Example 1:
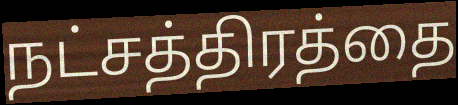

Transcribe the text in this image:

நட்சத்திரத்தை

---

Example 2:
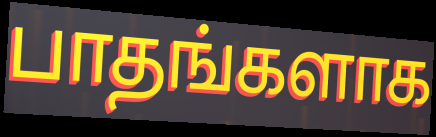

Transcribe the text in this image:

பாதங்களாக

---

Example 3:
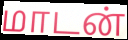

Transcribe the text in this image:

மாடன்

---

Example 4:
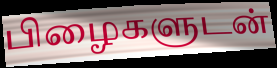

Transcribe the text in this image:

பிழைகளுடன்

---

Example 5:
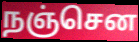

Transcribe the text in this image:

நஞ்சென